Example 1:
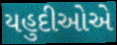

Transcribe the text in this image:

યહુદીઓએ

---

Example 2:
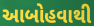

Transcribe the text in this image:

આબોહવાથી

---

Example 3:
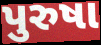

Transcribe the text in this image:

પુરુષા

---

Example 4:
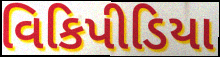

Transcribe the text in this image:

વિકિપીડિયા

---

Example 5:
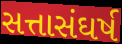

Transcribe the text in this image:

સત્તાસંઘર્ષ